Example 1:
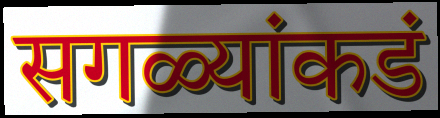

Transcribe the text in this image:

सगळ्यांकडं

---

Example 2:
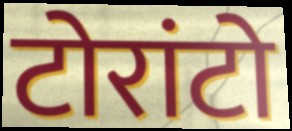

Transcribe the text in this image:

टोरांटो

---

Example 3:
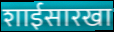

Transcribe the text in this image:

शाईसारखा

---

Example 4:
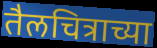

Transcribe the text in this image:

तैलचित्राच्या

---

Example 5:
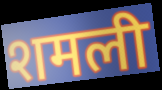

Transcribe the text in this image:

शमली